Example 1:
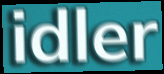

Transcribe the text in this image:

idler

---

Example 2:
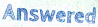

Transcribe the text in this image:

Answered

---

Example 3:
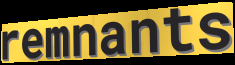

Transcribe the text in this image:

remnants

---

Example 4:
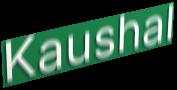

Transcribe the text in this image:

Kaushal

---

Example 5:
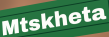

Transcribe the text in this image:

Mtskheta